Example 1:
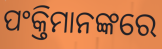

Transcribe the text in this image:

ପଂକ୍ତିମାନଙ୍କରେ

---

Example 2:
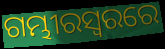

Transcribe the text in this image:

ଗମ୍ଭୀରସ୍ୱରରେ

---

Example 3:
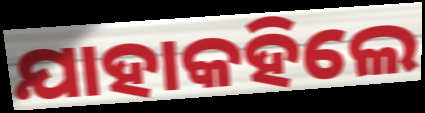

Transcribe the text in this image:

ଯାହାକହିଲେ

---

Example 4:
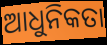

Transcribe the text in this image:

ଆଧୁନିକତା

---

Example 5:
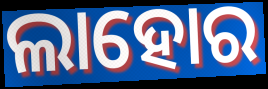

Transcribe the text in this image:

ଲାହୋର